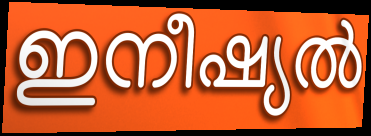
ഇനീഷ്യൽ